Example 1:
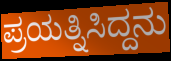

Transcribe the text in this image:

ಪ್ರಯತ್ನಿಸಿದ್ದನು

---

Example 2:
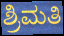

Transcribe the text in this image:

ಶ್ರಿಮತಿ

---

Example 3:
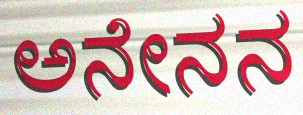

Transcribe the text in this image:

ಅನೇನನ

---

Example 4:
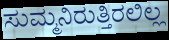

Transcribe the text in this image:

ಸುಮ್ಮನಿರುತ್ತಿರಲಿಲ್ಲ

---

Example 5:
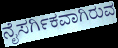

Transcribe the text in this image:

ನೈಸರ್ಗಿಕವಾಗಿರುವ